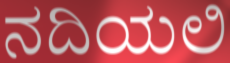
ನದಿಯಲಿ